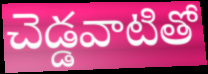
చెడ్డవాటితో